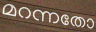
മറന്നതോ